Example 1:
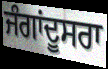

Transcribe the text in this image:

ਜੰਗਾਂਦੂਸਰਾ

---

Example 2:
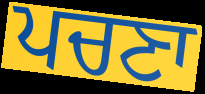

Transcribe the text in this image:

ਪਚਣਾ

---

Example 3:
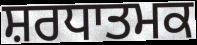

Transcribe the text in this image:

ਸ਼ਰਧਾਤਮਕ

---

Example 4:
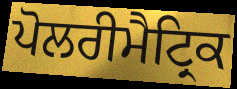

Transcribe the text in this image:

ਪੋਲਰੀਮੈਟ੍ਰਿਕ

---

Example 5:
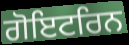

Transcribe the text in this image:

ਗੋਇਟਰਿਨ